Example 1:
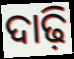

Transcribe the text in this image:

ଦାଢ଼ି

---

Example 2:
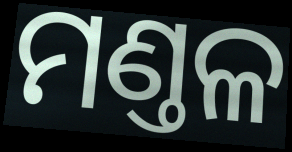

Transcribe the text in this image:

ମଣ୍ତଳ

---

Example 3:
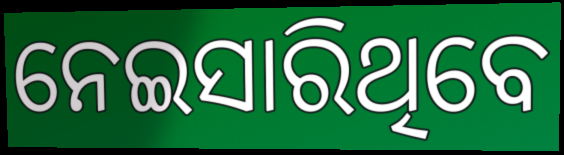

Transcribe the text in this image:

ନେଇସାରିଥିବେ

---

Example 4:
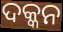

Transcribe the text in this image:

ଦକ୍କନ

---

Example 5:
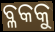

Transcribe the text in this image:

ବ୍ଳକକୁ